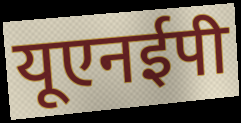
यूएनईपी